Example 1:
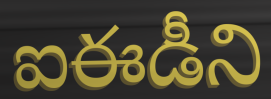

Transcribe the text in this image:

ఐఈడీని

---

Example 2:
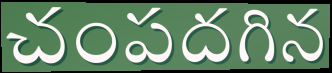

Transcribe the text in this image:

చంపదగిన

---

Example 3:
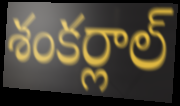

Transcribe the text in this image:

శంకర్లాల్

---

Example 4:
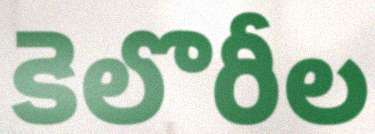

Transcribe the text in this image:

కెలొరీల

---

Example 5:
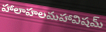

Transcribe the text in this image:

హాలాహలమహావిషమ్